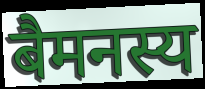
बैमनस्य